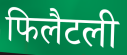
फिलैटली